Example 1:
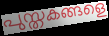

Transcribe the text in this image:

പുസ്തകങ്ങളെ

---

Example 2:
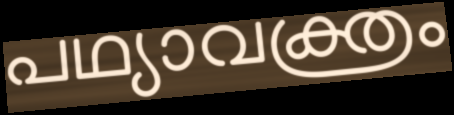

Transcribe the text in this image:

പഥ്യാവക്ത്രം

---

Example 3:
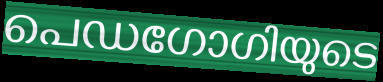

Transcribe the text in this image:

പെഡഗോഗിയുടെ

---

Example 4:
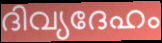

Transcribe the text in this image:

ദിവ്യദേഹം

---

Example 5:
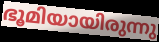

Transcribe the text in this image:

ഭൂമിയായിരുന്നു